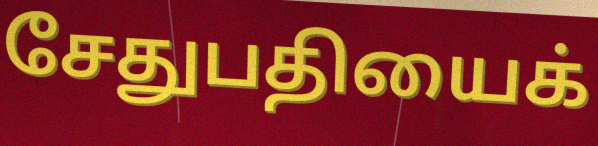
சேதுபதியைக்